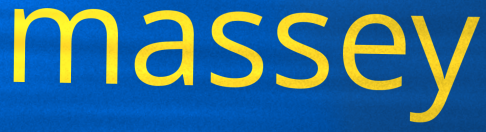
massey